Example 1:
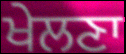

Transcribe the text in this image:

ਖੇਲਣਾ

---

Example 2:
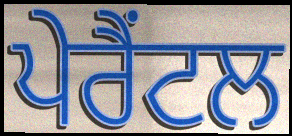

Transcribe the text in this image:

ਪੇਰੈਂਟਲ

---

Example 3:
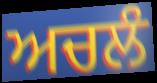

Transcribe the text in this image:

ਅਚਲੰ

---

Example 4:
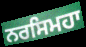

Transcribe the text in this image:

ਨਰਸਿਮਹਾ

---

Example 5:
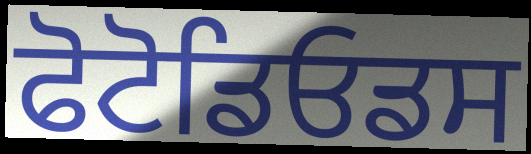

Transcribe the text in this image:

ਫੋਟੋਡਿਓਡਸ